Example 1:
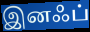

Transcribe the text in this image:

இனஃப்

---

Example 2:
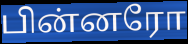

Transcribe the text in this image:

பின்னரோ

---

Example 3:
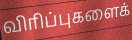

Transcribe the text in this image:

விரிப்புகளைக்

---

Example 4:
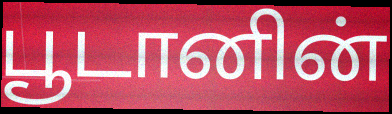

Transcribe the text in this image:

பூடானின்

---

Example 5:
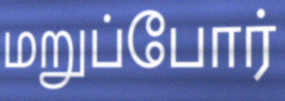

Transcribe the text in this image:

மறுப்போர்